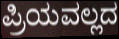
ಪ್ರಿಯವಲ್ಲದ